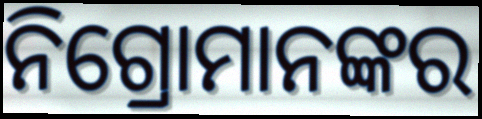
ନିଗ୍ରୋମାନଙ୍କର